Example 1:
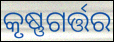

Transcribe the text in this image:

କୃଷ୍ଣଗର୍ତ୍ତର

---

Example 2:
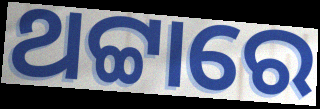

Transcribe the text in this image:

ଥଟ୍ଟାରେ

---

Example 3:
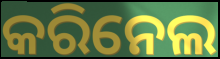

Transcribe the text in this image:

କରିନେଲ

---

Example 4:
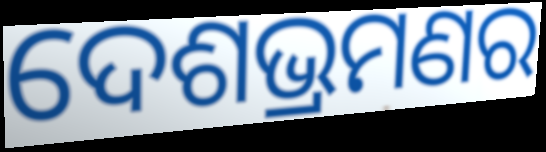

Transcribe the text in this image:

ଦେଶଭ୍ରମଣର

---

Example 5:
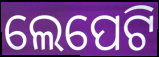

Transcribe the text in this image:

ଲେପେଟି